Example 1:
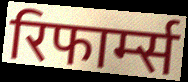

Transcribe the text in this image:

रिफार्म्स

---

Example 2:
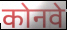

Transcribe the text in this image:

कोनवे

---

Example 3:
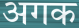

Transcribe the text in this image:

अगक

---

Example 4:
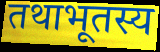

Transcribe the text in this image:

तथाभूतस्य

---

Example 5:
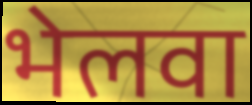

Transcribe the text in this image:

भेलवा